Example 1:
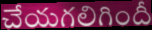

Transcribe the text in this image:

చేయగలిగిందీ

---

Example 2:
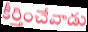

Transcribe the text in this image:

కీర్తించేవాడు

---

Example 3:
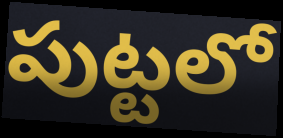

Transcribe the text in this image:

పుట్టలో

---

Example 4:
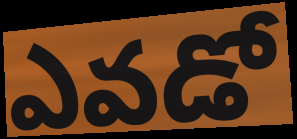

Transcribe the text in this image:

ఎవడో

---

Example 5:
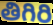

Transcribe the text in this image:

తిగిరి